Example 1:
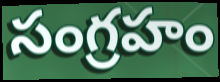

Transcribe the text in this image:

సంగ్రహం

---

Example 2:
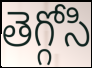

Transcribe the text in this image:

తెగ్గోసి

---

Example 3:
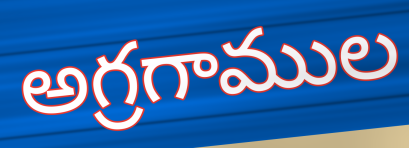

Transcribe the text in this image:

అగ్రగాముల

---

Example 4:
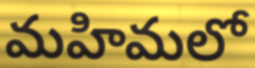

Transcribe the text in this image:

మహిమలో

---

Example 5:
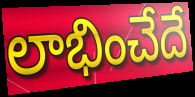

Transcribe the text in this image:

లాభించేదే